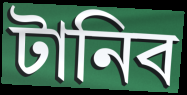
টানিব